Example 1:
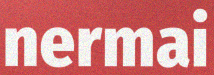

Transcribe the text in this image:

nermai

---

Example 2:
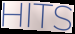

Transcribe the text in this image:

HITS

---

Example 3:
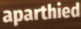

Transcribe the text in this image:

aparthied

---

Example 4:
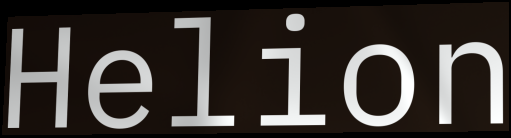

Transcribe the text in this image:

Helion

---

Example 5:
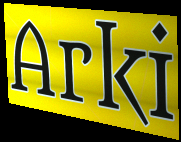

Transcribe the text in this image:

Arki